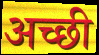
अच्‍छी